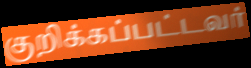
குறிக்கப்பட்டவர்